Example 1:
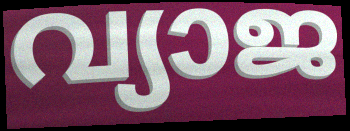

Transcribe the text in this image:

വ്യാജ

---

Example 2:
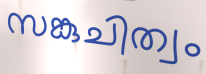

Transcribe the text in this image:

സങ്കുചിത്വം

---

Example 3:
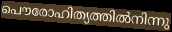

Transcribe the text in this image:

പൌരോഹിത്യത്തിൽനിന്നു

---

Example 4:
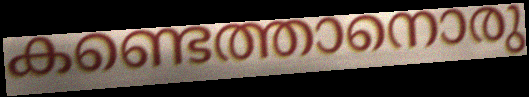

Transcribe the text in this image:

കണ്ടെത്താനൊരു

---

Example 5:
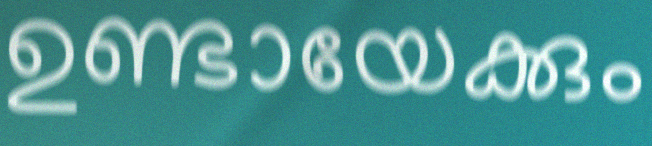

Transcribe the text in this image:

ഉണ്ടായേക്കും